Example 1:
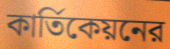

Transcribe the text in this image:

কার্তিকেয়নের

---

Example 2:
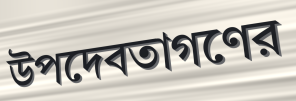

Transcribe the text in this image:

উপদেবতাগণের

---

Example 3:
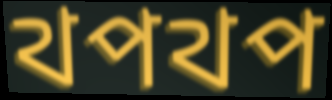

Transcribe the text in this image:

থপথপ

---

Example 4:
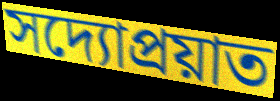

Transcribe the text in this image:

সদ্যোপ্রয়াত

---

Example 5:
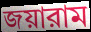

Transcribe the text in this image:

জয়ারাম